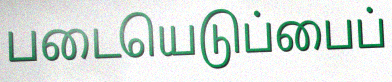
படையெடுப்பைப்